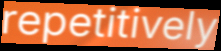
repetitively